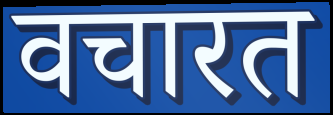
वचारत